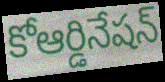
కోఆర్డినేషన్